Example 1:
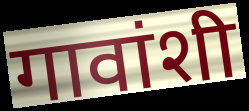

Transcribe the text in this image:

गावांशी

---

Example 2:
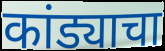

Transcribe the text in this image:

कांड्याचा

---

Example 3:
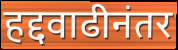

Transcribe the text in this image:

हद्दवाढीनंतर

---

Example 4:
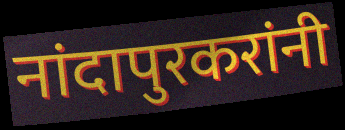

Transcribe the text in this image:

नांदापुरकरांनी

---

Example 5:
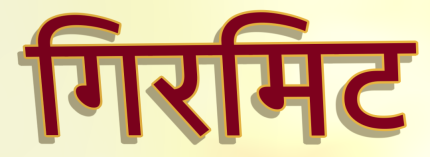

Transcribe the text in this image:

गिरमिट